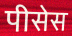
पीसेस